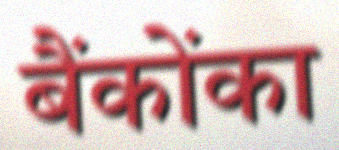
बैंकोंका